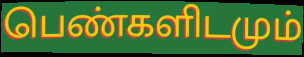
பெண்களிடமும்